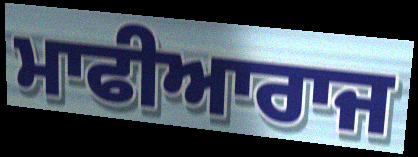
ਮਾਫੀਆਰਾਜ